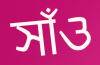
সাঁও